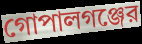
গোপালগঞ্জের